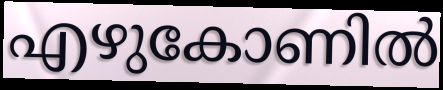
എഴുകോണിൽ